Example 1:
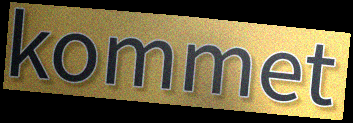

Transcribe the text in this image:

kommet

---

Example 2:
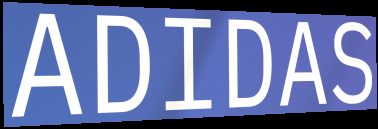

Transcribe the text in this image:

ADIDAS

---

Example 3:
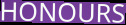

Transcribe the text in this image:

HONOURS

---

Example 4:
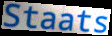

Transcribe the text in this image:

Staats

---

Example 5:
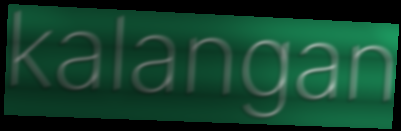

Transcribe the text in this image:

kalangan